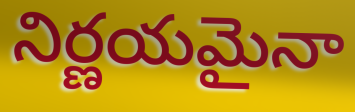
నిర్ణయమైనా